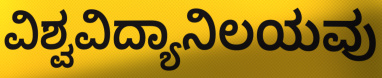
ವಿಶ್ವವಿದ್ಯಾನಿಲಯವು